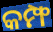
କମ୍ଫ